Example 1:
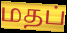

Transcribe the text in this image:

மதப்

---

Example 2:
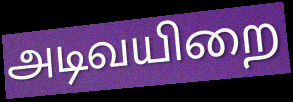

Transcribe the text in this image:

அடிவயிறை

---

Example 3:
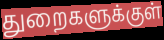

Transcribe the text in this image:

துறைகளுக்குள்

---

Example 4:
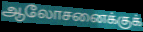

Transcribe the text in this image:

ஆலோசனைக்குக்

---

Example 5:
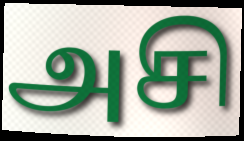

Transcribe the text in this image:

அசி